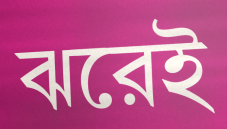
ঝরেই